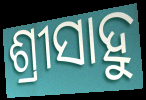
ଶ୍ରୀସାହୁ